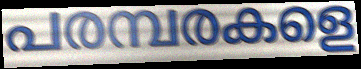
പരമ്പരകളെ